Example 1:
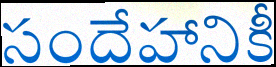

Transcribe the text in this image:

సందేహానికీ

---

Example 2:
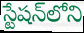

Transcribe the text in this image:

స్టేషన్‌లోని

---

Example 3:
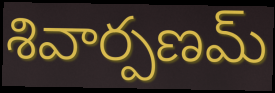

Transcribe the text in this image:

శివార్పణమ్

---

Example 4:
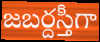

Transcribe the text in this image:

జబర్దస్తీగా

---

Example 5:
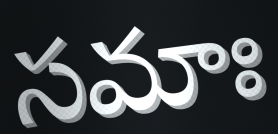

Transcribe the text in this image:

సమాః